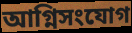
আগ্নিসংযোগ